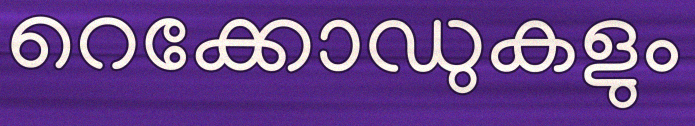
റെക്കോഡുകളും